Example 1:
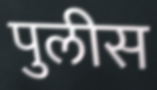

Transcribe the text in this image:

पुलीस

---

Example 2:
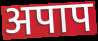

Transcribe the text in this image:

अपाप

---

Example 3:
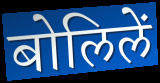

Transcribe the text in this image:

बोलिलें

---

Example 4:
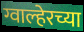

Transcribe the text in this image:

ग्वाल्हेरच्या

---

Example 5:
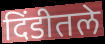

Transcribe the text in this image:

दिंडीतले